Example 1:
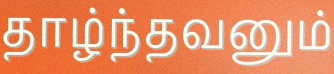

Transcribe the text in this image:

தாழ்ந்தவனும்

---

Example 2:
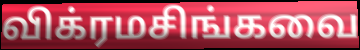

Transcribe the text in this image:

விக்ரமசிங்கவை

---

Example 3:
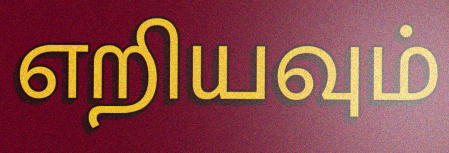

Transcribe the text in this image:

எறியவும்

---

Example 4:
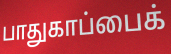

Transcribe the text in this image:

பாதுகாப்பைக்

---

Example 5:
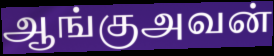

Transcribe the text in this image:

ஆங்குஅவன்